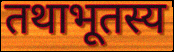
तथाभूतस्य